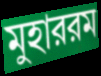
মুহাররম